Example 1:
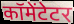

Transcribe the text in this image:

कॉमेंटेटर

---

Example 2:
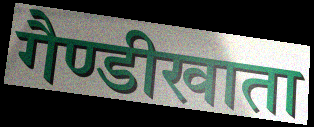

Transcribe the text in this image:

गैण्डीखाता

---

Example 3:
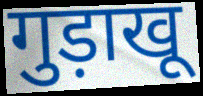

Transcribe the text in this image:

गुड़ाखू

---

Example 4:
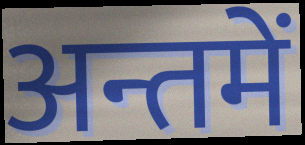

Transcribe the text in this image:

अन्तमें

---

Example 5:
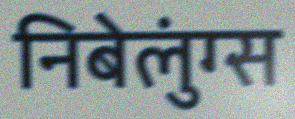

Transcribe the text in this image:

निबेलुंग्स